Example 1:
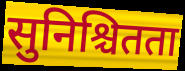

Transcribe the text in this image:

सुनिश्चितता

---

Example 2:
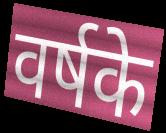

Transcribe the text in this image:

वर्षके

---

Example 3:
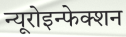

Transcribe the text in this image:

न्यूरोइन्फेक्शन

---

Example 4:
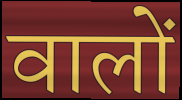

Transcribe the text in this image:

वालों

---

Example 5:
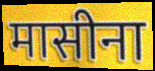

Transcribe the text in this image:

मासीना